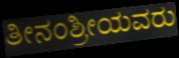
ತೀನಂಶ್ರೀಯವರು